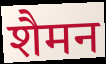
शैमन